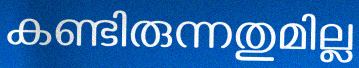
കണ്ടിരുന്നതുമില്ല